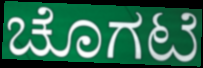
ಚೊಗಟೆ